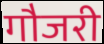
गौजरी